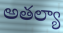
అతల్యా